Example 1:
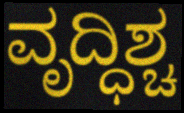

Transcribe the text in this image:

ವೃದ್ಧಿಶ್ಚ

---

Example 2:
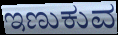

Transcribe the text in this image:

ಇಣುಕುವ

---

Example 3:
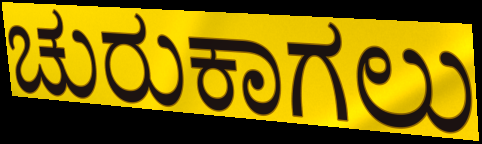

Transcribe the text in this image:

ಚುರುಕಾಗಲು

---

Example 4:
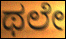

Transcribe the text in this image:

ಥಲೇ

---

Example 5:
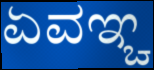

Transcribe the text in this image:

ಏವಞ್ಚ